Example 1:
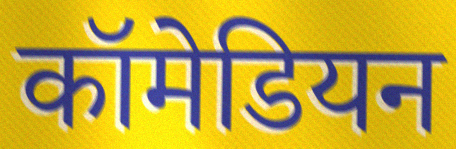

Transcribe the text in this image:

कॉमेडियन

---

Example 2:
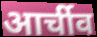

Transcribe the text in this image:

आर्चीव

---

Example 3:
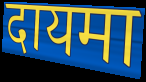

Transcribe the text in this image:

दायमा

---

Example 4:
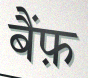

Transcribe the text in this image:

बैंफ़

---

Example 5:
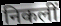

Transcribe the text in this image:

निकलीं